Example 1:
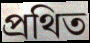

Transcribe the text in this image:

প্রথিত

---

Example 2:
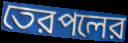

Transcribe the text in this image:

তেরপলের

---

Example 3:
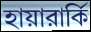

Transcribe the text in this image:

হায়ারার্কি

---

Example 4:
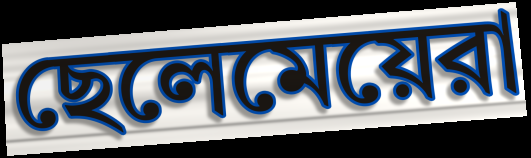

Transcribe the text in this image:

ছেলেমেয়েরা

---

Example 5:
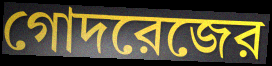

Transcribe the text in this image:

গোদরেজের